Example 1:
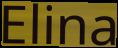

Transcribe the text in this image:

Elina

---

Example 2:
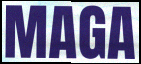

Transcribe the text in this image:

MAGA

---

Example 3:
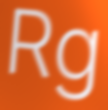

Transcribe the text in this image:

Rg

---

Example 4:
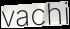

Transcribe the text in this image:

vachi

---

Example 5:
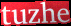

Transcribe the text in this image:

tuzhe